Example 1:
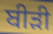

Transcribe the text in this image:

ਬੀਡ਼ੀ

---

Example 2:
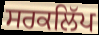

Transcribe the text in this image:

ਸਰਕਲਿੱਪ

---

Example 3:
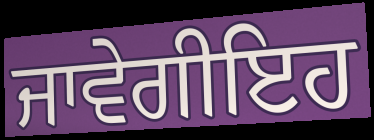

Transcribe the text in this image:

ਜਾਵੇਗੀਇਹ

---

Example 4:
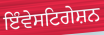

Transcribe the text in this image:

ਇੰਵੇਸਟਿਗੇਸ਼ਨ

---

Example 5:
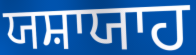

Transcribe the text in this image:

ਯਸ਼ਾਯਾਹ